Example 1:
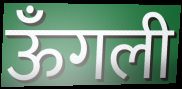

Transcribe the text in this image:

ऊँगली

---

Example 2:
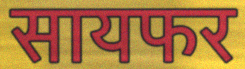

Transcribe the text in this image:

सायफर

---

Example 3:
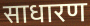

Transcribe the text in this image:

साधारण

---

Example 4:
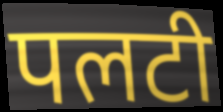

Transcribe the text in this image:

पलटी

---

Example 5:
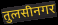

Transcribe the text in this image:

तुलसीनगर